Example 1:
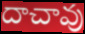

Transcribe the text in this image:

దాచావు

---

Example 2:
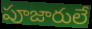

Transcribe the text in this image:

పూజారులే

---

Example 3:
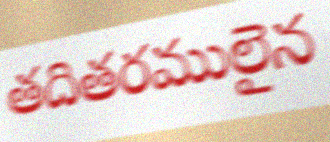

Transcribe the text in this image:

తదితరములైన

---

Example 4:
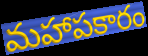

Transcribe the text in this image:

మహాపకారం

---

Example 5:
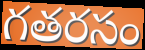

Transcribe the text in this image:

గతరసం